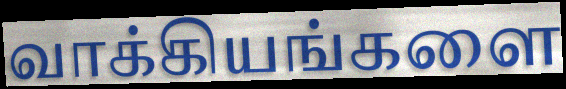
வாக்கியங்களை